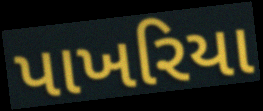
પાખરિયા